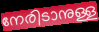
നേരിടാനുള്ള